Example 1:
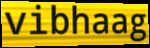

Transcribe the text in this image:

vibhaag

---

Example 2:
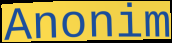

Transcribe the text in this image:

Anonim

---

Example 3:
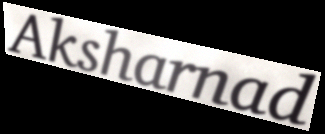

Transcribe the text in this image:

Aksharnad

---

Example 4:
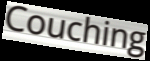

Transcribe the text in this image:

Couching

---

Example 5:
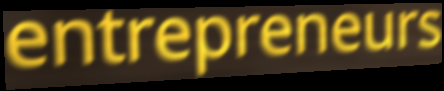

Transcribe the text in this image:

entrepreneurs